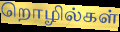
றொழில்கள்